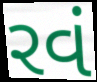
રવં